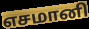
எசமானி